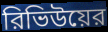
রিভিউয়ের